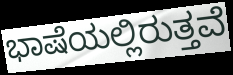
ಭಾಷೆಯಲ್ಲಿರುತ್ತವೆ